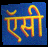
ऍसी